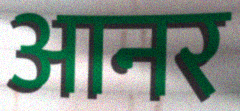
आनर